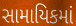
સામાયિકમાં